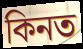
কিনত